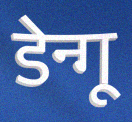
डेन्गू